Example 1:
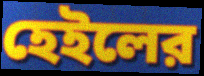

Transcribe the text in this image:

হেইলের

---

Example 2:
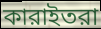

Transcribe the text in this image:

কারাইতরা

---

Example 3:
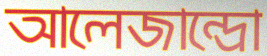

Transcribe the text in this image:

আলেজান্দ্রো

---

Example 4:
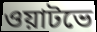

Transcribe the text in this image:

ওয়াটভে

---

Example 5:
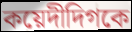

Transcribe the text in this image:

কয়েদীদিগকে